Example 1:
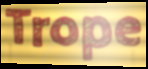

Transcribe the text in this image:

Trope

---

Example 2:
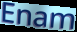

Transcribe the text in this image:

Enam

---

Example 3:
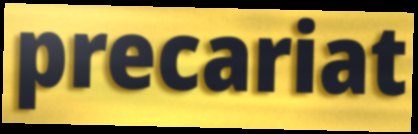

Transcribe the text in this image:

precariat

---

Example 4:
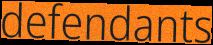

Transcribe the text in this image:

defendants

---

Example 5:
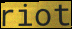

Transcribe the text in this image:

riot